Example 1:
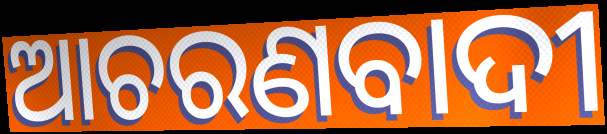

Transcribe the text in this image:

ଆଚରଣବାଦୀ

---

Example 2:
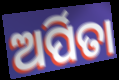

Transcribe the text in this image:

ଅର୍ପିତା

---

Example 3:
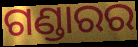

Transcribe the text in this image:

ଗଣ୍ଡାରର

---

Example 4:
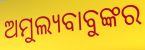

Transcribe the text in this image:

ଅମୁଲ୍ୟବାବୁଙ୍କର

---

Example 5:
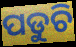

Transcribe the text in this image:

ପଡୁଚି